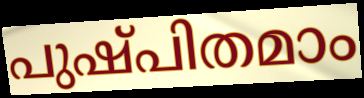
പുഷ്പിതമാം